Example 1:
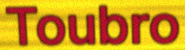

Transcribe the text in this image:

Toubro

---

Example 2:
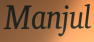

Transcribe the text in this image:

Manjul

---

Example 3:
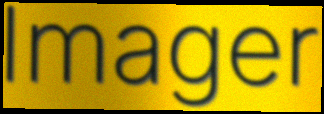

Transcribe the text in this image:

Imager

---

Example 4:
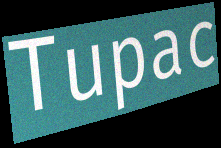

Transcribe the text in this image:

Tupac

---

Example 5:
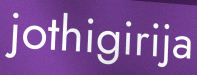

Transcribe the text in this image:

jothigirija